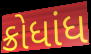
ક્રોધાંધ